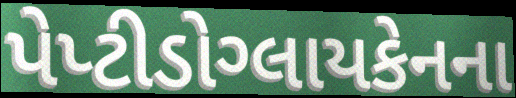
પેપ્ટીડોગ્લાયકેનના